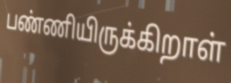
பண்ணியிருக்கிறாள்